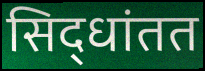
सिद्धांतत